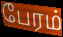
பேரம்